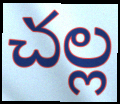
చల్ల